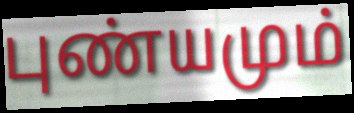
புண்யமும்